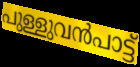
പുള്ളുവൻപാട്ട്